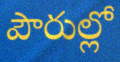
పౌరుల్లో